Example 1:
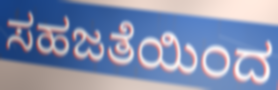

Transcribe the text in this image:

ಸಹಜತೆಯಿಂದ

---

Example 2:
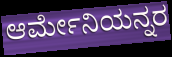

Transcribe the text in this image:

ಆರ್ಮೇನಿಯನ್ನರ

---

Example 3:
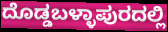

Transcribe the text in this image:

ದೊಡ್ಡಬಳ್ಳಾಪುರದಲ್ಲಿ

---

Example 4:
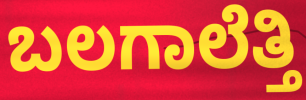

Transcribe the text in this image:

ಬಲಗಾಲೆತ್ತಿ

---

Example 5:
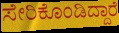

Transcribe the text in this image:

ಸೇರಿಕೊಂಡಿದ್ದಾರೆ